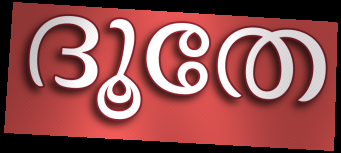
ദൂതേ